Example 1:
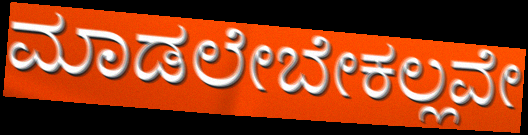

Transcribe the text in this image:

ಮಾಡಲೇಬೇಕಲ್ಲವೇ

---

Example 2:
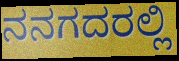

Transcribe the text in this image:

ನನಗದರಲ್ಲಿ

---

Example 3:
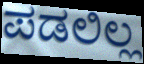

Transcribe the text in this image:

ಪಡಲಿಲ್ಲ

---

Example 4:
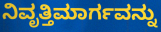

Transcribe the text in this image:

ನಿವೃತ್ತಿಮಾರ್ಗವನ್ನು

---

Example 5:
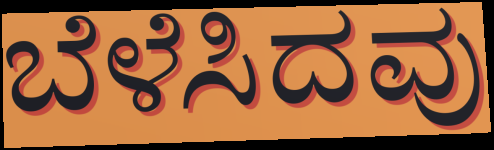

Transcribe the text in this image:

ಬೆಳೆಸಿದವು